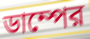
ডাম্পের